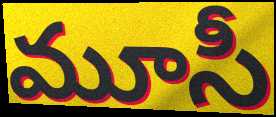
మూసీ